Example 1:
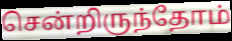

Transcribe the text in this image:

சென்றிருந்தோம்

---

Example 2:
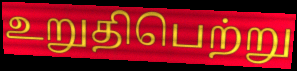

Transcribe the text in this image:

உறுதிபெற்று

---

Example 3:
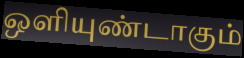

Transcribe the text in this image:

ஒளியுண்டாகும்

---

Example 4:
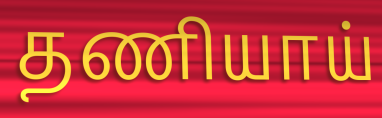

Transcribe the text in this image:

தணியாய்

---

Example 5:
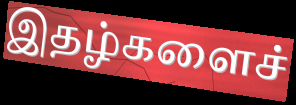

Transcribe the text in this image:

இதழ்களைச்